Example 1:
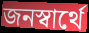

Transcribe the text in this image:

জনস্বার্থে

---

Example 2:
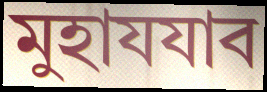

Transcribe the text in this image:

মুহাযযাব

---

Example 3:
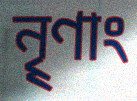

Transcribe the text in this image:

নৄণাং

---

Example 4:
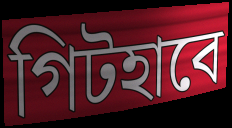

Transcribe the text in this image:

গিটহাবে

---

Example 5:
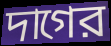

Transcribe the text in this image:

দাগের